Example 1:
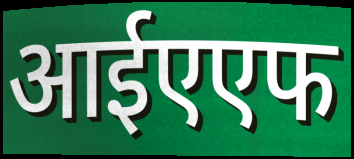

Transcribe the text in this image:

आईएएफ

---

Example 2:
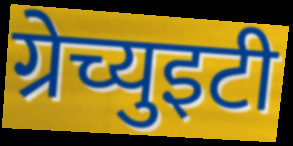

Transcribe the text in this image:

ग्रेच्युइटी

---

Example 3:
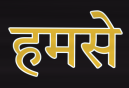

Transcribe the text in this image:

हमसे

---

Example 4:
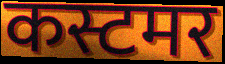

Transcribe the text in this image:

कस्टमर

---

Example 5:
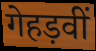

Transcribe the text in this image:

गेहड़वीं